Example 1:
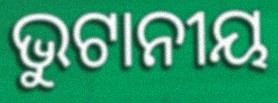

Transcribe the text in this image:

ଭୁଟାନୀୟ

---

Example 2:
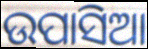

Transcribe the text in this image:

ଉପାସିଆ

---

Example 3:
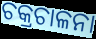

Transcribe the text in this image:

ଚକ୍ରଚାଳନା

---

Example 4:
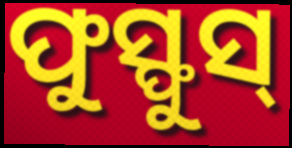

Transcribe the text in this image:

ଫୁସ୍ଫୁସ୍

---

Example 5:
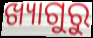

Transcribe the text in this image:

ଖ୍ୟାଗୁରୁ